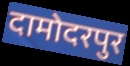
दामोदरपुर